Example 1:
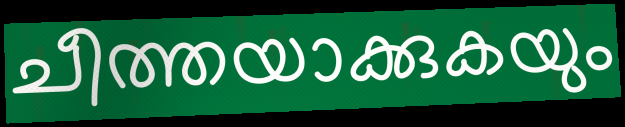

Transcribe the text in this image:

ചീത്തയാക്കുകയും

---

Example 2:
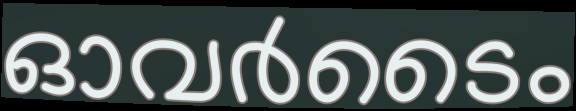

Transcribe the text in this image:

ഓവർടൈം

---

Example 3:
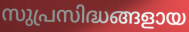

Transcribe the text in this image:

സുപ്രസിദ്ധങ്ങളായ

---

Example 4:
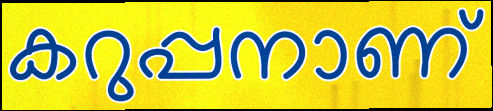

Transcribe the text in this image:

കറുപ്പനാണ്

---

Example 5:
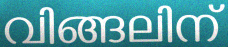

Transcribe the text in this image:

വിങ്ങലിന്